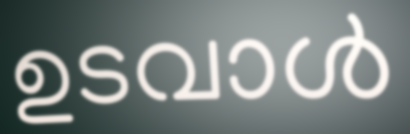
ഉടവാൾ